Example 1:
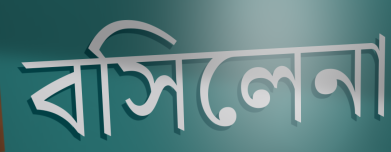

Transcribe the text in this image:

বসিলেনা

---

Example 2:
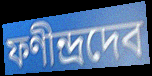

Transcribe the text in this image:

ফণীন্দ্রদেব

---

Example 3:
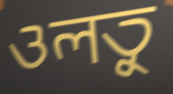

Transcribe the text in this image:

ওলতু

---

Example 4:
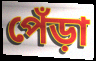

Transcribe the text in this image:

পেঁড়া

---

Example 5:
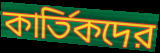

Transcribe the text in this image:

কার্তিকদের